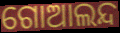
ଗୋଆଲନ୍ଦ